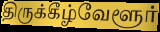
திருக்கீழ்வேளூர்